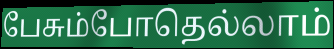
பேசும்போதெல்லாம்